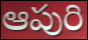
ఆపురి